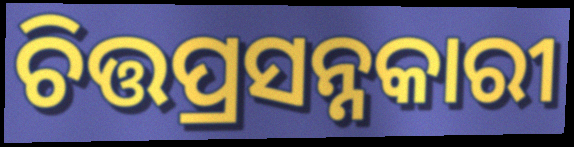
ଚିତ୍ତପ୍ରସନ୍ନକାରୀ